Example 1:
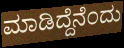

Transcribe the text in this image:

ಮಾಡಿದ್ದೆನೆಂದು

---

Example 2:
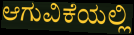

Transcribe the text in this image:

ಆಗುವಿಕೆಯಲ್ಲಿ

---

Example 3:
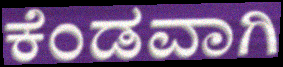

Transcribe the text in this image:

ಕೆಂಡವಾಗಿ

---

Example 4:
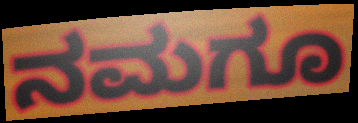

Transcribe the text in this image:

ನಮಗೂ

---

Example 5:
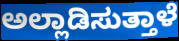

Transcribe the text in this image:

ಅಲ್ಲಾಡಿಸುತ್ತಾಳೆ